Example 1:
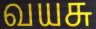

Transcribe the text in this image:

வயசு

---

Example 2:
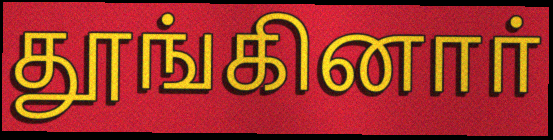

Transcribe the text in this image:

தூங்கினார்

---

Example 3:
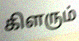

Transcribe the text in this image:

கிளரும்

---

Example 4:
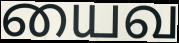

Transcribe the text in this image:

யைவ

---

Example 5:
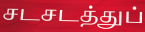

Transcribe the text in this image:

சடசடத்துப்